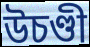
উচণ্ডী